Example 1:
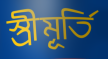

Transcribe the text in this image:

স্ত্রীমূর্তি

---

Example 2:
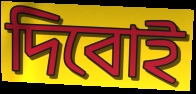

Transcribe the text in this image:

দিবোই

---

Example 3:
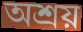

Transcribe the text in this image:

অশ্রয়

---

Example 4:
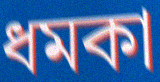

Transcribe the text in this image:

ধমকা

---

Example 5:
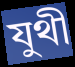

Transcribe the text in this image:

যুথী